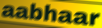
aabhaar